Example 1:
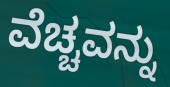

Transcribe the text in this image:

ವೆಚ್ಚವನ್ನು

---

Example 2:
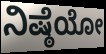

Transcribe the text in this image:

ನಿಷ್ಠೆಯೋ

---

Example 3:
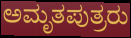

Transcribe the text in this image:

ಅಮೃತಪುತ್ರರು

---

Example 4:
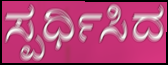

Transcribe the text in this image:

ಸ್ಪರ್ಧಿಸಿದ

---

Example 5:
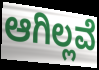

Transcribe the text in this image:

ಆಗಿಲ್ಲವೆ